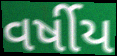
વર્ષીય